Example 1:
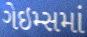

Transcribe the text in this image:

ગેઇમ્સમાં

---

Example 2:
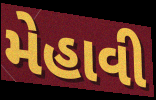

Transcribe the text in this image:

મેહાવી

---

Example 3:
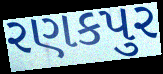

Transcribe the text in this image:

રણકપુર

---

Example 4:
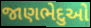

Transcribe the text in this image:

જાણભેદુઓ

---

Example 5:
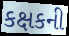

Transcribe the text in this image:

કક્ષકની